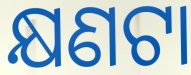
କ୍ଷଣଟା